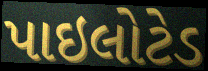
પાઇલોટેડ